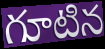
గూటిన